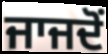
ਜਾਜਦੋਂ